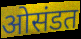
ओसंडत